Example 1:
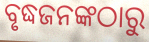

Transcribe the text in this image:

ବୃଦ୍ଧଜନଙ୍କଠାରୁ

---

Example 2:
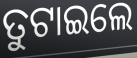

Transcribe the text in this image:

ତୁଟାଇଲେ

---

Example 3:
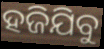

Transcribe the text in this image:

ହଜିଯିବୁ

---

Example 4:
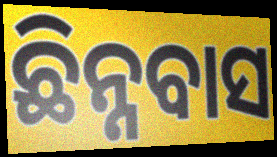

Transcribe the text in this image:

ଛିନ୍ନବାସ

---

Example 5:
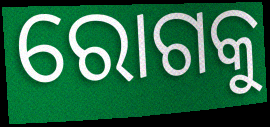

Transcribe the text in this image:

ରୋଗକୁ